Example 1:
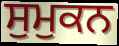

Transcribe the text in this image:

ਸੁਮੁਕਨ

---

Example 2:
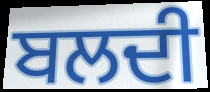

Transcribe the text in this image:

ਬਲਦੀ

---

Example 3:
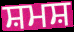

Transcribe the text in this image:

ਸ਼ਮਸ਼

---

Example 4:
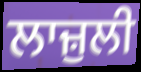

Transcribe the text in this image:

ਲਾਜ਼ੁਲੀ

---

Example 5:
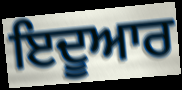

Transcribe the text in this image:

ਇਦੂਆਰ